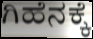
ಗಿಹೆನಕ್ಕೆ